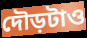
দৌড়টাও